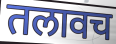
तलावच